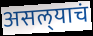
असल्याचं